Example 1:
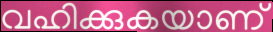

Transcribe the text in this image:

വഹിക്കുകയാണ്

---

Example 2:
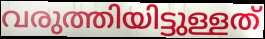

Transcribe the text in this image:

വരുത്തിയിട്ടുള്ളത്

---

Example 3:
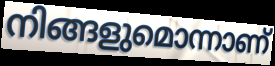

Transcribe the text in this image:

നിങ്ങളുമൊന്നാണ്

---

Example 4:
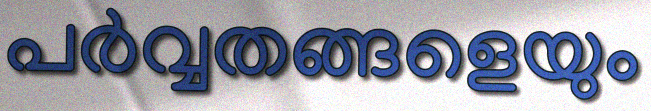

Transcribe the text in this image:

പർവ്വതങ്ങളെയും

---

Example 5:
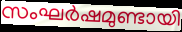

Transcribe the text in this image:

സംഘർഷമുണ്ടായി